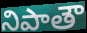
నిపాతౌ